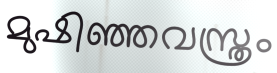
മുഷിഞ്ഞവസ്ത്രം